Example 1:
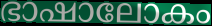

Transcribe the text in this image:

ഭാഷാലോകം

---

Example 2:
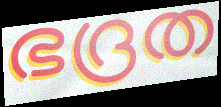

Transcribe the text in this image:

ഭദ്രത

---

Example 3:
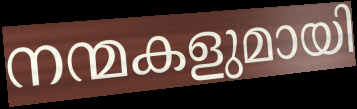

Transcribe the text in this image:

നന്മകളുമായി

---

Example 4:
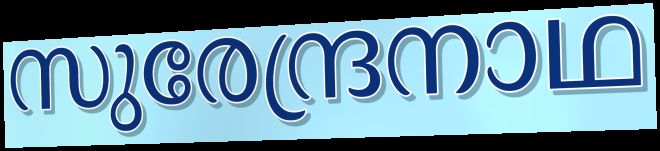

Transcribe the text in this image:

സുരേന്ദ്രനാഥ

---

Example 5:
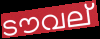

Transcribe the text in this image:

ടൗവല്